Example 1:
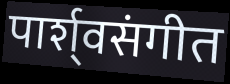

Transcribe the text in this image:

पार्श्वसंगीत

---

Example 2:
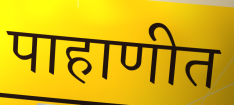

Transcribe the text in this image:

पाहाणीत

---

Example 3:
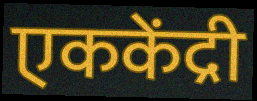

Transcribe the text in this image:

एककेंद्री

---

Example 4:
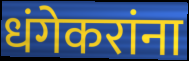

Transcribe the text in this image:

धंगेकरांना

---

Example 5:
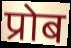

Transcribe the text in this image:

प्रोब